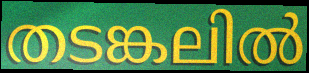
തടങ്കലിൽ